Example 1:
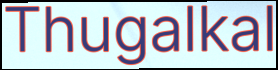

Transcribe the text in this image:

Thugalkal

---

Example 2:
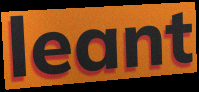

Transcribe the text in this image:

leant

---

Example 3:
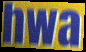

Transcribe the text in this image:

hwa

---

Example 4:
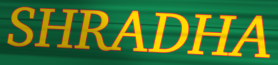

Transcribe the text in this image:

SHRADHA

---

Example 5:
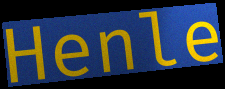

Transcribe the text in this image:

Henle